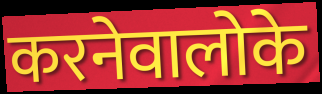
करनेवालोके